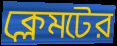
ক্লেমটের